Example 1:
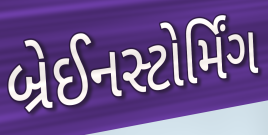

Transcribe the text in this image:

બ્રેઈનસ્ટોર્મિંગ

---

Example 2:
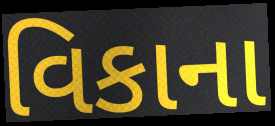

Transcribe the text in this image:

વિકાના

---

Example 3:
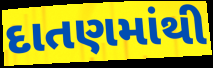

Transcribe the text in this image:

દાતણમાંથી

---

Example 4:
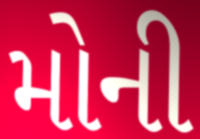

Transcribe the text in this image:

મોની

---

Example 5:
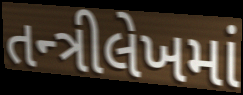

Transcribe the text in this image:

તન્ત્રીલેખમાં